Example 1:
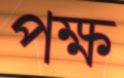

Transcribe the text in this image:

পক্ষ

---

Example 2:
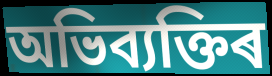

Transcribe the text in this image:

অভিব্যক্তিৰ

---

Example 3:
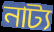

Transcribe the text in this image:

নাট্য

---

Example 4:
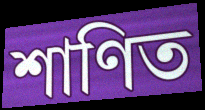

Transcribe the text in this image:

শাণিত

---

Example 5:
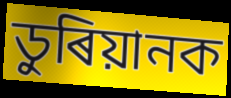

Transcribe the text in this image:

ডুৰিয়ানক